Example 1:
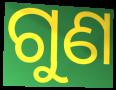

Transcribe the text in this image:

ଗୁଣ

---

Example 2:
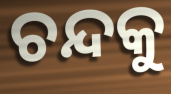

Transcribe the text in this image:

ଚନ୍ଦକୁ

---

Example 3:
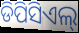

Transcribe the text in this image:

ଡିପିସିଏଲ୍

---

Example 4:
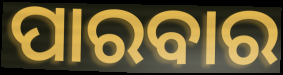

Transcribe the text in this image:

ପାରବାର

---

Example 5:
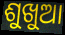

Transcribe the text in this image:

ଶୁଖୁଆ